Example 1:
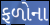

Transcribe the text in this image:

ફળોના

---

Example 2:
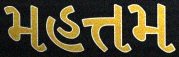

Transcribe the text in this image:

મહત્તમ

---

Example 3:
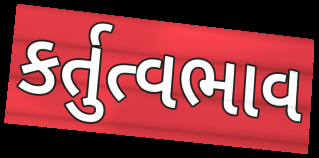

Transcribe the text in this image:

કર્તુત્વભાવ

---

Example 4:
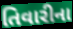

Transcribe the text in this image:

તિવારીના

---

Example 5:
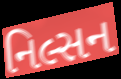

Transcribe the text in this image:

નિલ્સન